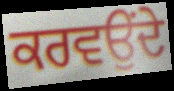
ਕਰਵਉਂਦੇ